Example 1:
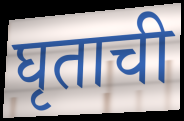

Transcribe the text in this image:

घृताची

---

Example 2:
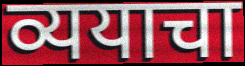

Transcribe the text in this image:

व्ययाचा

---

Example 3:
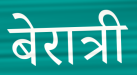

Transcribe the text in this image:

बेरात्री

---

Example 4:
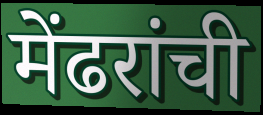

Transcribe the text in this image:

मेंढरांची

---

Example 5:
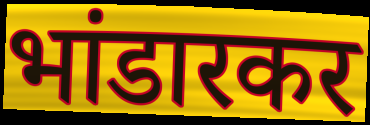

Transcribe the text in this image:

भांडारकर